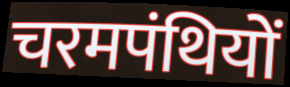
चरमपंथियों